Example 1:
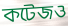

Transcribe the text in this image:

কটেজও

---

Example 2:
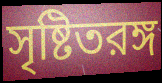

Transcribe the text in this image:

সৃষ্টিতরঙ্গ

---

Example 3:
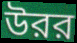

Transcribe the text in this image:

উরর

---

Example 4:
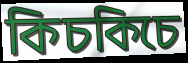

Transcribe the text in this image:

কিচকিচে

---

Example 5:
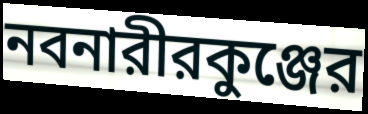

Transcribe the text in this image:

নবনারীরকুঞ্জের